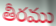
తీరము